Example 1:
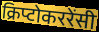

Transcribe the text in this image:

क्रिप्टोकररेंसी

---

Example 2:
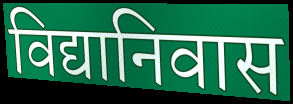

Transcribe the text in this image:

विद्यानिवास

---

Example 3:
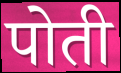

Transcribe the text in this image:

पोती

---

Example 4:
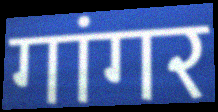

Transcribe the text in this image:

गांगर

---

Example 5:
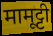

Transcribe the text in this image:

मामूट्टी